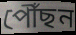
পৌঁছন